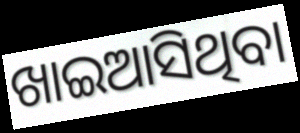
ଖାଇଆସିଥିବା